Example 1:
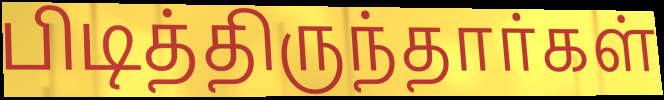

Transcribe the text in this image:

பிடித்திருந்தார்கள்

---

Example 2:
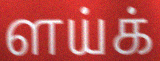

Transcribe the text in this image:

ளய்க்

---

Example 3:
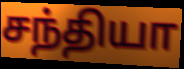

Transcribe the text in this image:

சந்தியா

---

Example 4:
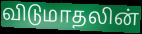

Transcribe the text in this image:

விடுமாதலின்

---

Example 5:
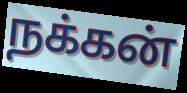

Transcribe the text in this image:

நக்கன்